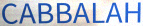
CABBALAH